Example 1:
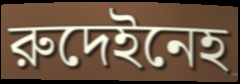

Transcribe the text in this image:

রুদেইনেহ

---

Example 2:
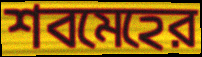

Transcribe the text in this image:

শবমেহের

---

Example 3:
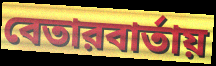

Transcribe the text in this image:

বেতারবার্তায়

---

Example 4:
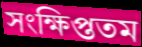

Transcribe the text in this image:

সংক্ষিপ্ততম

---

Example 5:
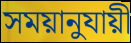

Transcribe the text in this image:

সময়ানুযায়ী